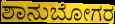
ಶಾನುಬೋಗರ